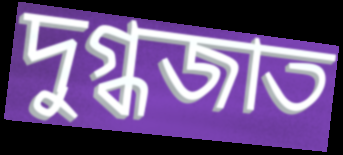
দুগ্ধজাত